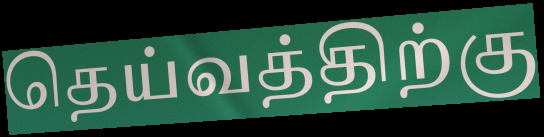
தெய்வத்திற்கு